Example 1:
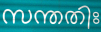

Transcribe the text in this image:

സന്തതിഃ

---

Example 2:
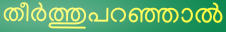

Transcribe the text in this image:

തീർത്തുപറഞ്ഞാൽ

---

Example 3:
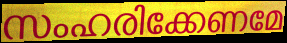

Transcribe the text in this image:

സംഹരിക്കേണമേ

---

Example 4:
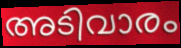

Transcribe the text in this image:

അടിവാരം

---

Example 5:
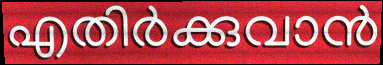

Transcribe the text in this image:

എതിർക്കുവാൻ